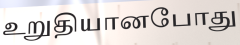
உறுதியானபோது